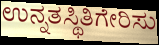
ಉನ್ನತಸ್ಥಿತಿಗೇರಿಸು